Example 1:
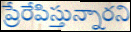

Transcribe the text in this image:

ప్రేరేపిస్తున్నారని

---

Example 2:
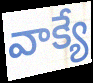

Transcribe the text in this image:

వాక్యే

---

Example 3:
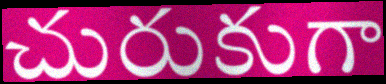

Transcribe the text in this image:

చురుకుగా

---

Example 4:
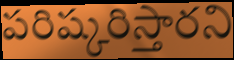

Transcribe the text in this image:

పరిష్కరిస్తారని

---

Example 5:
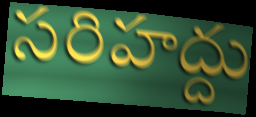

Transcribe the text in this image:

సరిహద్దు